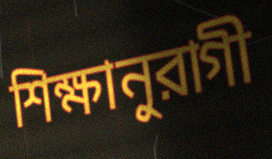
শিক্ষানুরাগী